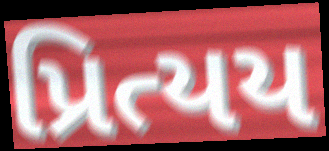
પ્રિત્યય